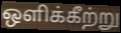
ஒளிக்கீற்று